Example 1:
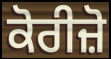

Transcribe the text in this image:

ਕੋਰੀਜ਼ੋ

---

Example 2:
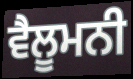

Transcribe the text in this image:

ਵੈਲੂਮਨੀ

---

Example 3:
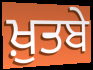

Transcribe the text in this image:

ਖ਼ੁਤਬੇ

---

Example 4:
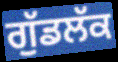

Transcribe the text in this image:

ਗੁੱਡਲੱਕ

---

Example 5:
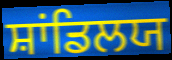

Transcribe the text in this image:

ਸ਼ਾਂਡਿਲਯ